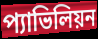
প্যাভিলিয়ন